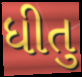
ધીતુ